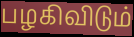
பழகிவிடும்